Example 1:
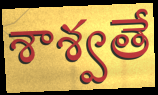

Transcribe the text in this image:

శాశ్వతే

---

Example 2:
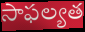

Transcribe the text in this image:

సాఫల్యత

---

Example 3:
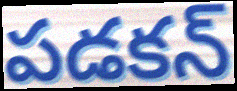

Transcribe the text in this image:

పడకన్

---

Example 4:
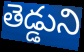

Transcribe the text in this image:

తెడ్డుని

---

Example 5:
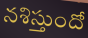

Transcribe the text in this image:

నశిస్తుందో